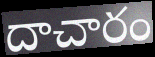
దాచారం